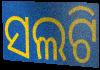
ସଲଟି